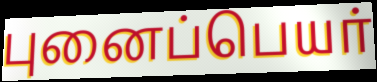
புனைப்பெயர்